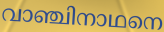
വാഞ്ചിനാഥനെ